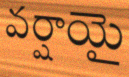
వర్షాయై